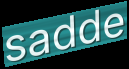
sadde